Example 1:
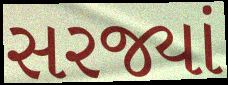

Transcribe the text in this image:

સરજ્યાં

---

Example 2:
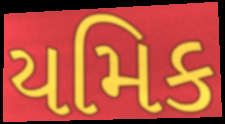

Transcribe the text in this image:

યમિક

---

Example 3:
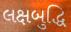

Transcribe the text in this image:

લક્ષબુદ્ધિ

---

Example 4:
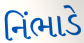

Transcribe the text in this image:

નિંભાડે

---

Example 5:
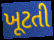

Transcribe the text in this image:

ખૂટતી